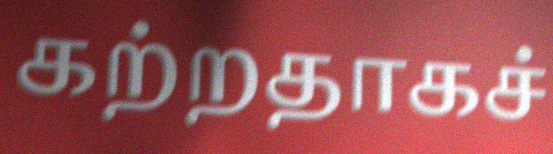
கற்றதாகச்